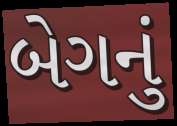
બેગનું